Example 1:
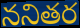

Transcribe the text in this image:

ననితర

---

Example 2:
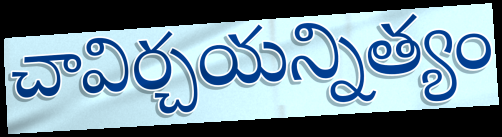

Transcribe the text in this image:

చావిర్చయన్నిత్యం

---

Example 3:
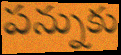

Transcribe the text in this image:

పన్నుకు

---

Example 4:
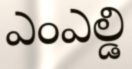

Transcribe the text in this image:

ఎంఎల్డి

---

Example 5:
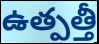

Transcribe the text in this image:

ఉత్పత్తీ